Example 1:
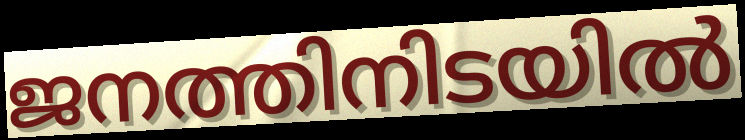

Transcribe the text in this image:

ജനത്തിനിടയിൽ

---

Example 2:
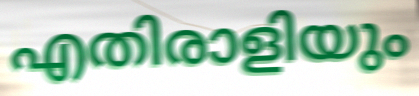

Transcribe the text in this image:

എതിരാളിയും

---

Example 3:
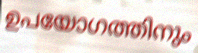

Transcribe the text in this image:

ഉപയോഗത്തിനും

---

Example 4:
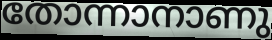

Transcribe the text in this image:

തോന്നാനാണു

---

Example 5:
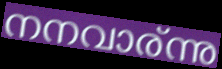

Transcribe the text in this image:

നനവാര്ന്നു